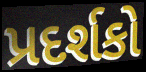
પ્રદર્શકો